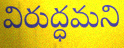
విరుద్ధమని